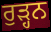
ਰੁੜ੍ਹਨ